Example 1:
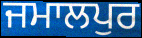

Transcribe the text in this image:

ਜਮਾਲਪੁਰ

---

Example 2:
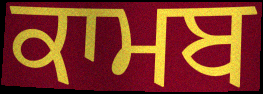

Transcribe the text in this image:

ਕਾਮਬ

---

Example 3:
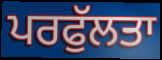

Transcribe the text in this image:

ਪਰਫੁੱਲਤਾ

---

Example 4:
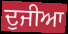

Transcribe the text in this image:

ਦੁਜੀਆ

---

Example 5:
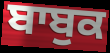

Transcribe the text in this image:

ਬਾਬੁਕ